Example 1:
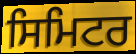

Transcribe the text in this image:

ਸਿਮਿਟਰ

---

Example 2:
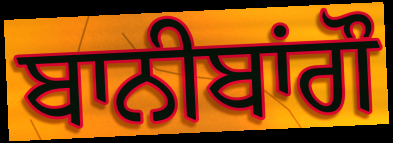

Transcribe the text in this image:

ਬਾਨੀਬਾਂਗੌ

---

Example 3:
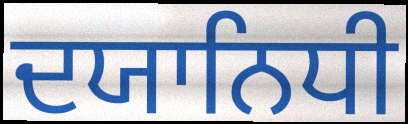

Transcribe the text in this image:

ਦਯਾਨਿਧੀ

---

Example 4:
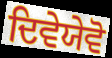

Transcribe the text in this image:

ਦਿਵੇਯੇਵੋ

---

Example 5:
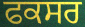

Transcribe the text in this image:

ਫਕਸਰ